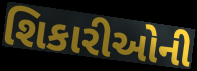
શિકારીઓની